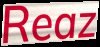
Reaz